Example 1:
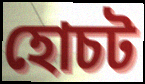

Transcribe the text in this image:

হোচট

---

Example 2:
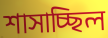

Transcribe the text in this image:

শাসাচ্ছিল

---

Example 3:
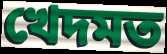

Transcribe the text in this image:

খেদমত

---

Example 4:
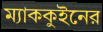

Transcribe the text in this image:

ম্যাককুইনের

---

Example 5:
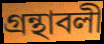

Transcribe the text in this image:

গ্রন্থাবলী